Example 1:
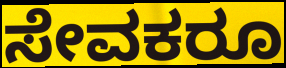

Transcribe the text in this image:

ಸೇವಕರೂ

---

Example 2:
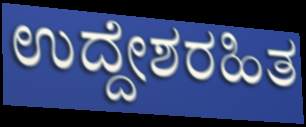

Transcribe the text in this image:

ಉದ್ದೇಶರಹಿತ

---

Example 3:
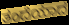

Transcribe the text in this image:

ತಂದೆಯಾದ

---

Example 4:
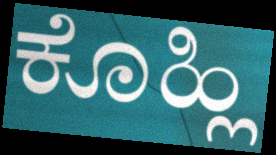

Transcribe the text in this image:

ಕೊಹ್ಲಿ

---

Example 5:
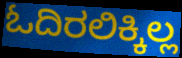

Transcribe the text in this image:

ಓದಿರಲಿಕ್ಕಿಲ್ಲ